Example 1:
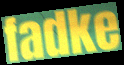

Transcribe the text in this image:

fadke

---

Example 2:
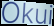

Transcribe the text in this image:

Okui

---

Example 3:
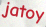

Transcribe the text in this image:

jatoy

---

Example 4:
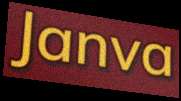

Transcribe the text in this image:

Janva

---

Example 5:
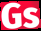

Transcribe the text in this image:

Gs